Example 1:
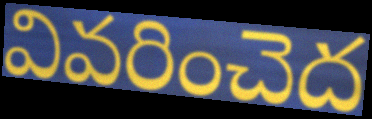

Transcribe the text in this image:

వివరించెద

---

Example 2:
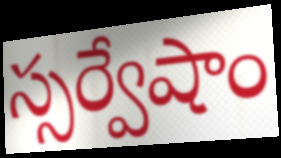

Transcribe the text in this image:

స్సర్వేషాం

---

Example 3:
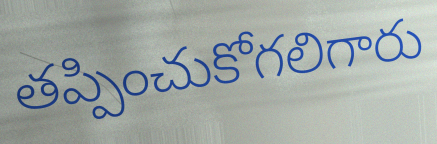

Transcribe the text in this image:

తప్పించుకోగలిగారు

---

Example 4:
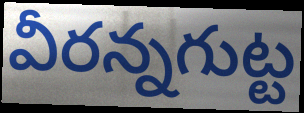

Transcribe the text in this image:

వీరన్నగుట్ట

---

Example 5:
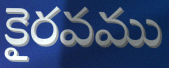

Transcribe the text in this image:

కైరవము